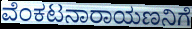
ವೆಂಕಟನಾರಾಯಣನಿಗೆ